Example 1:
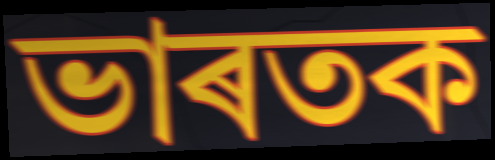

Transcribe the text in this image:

ভাৰতক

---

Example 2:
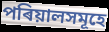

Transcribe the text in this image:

পৰিয়ালসমূহে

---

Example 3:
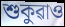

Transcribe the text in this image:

শুকুৱাও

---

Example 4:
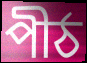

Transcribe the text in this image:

পীঠ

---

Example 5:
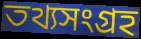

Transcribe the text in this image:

তথ্যসংগ্ৰহ